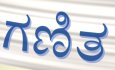
ಗಣಿತ